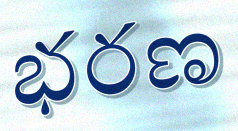
భరణ